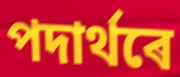
পদাৰ্থৰে